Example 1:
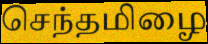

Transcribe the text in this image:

செந்தமிழை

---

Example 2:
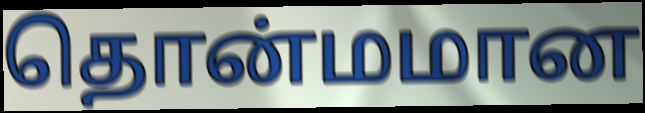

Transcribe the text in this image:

தொன்மமான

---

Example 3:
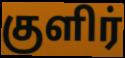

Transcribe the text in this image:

குளிர்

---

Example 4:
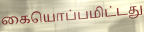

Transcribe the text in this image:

கையொப்பமிட்டது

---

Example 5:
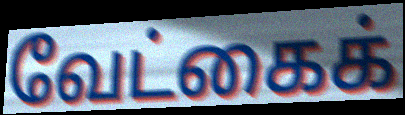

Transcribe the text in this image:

வேட்கைக்